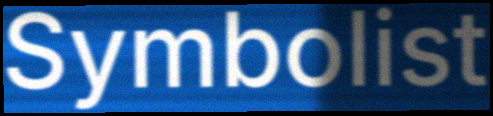
Symbolist